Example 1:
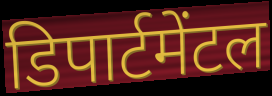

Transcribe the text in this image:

डिपार्टमेंटल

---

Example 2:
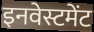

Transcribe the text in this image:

इनवेस्टमेंट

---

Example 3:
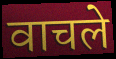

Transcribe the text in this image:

वाचले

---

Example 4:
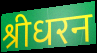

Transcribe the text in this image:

श्रीधरन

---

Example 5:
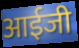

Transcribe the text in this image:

आईजी